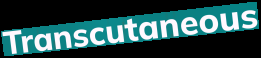
Transcutaneous